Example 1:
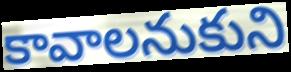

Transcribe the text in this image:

కావాలనుకుని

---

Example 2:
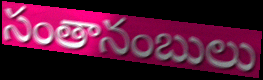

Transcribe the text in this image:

సంతానంబులు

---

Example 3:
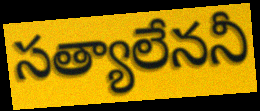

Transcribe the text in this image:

సత్యాలేననీ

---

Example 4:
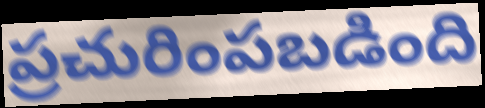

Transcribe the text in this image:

ప్రచురింపబడింది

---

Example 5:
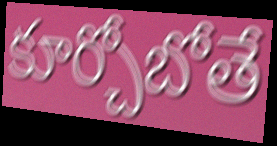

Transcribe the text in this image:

కూర్చోబోతే